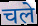
चले